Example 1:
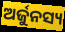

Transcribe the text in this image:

ଅର୍ଜୁନସ୍ୟ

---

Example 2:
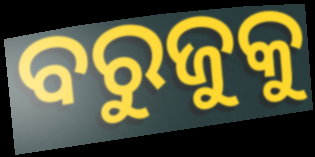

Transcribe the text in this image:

ବରୁଜୁକୁ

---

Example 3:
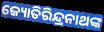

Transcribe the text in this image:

ଜ୍ୟୋତିରିନ୍ଦ୍ରନାଥଙ୍କ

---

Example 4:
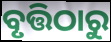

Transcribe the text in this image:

ବୃତ୍ତିଠାରୁ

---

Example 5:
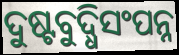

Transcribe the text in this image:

ଦୁଷ୍ଟବୁଦ୍ଧିସଂପନ୍ନ